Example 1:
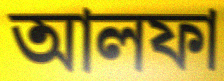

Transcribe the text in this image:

আলফা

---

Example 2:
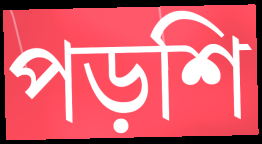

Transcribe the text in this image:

পড়শি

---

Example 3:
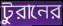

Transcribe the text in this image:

টুরানের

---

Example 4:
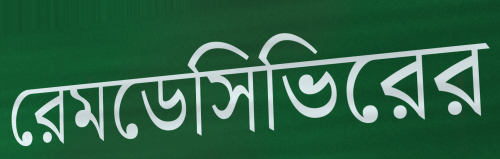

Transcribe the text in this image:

রেমডেসিভিরের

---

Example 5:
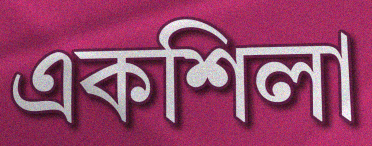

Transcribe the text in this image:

একশিলা